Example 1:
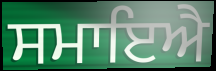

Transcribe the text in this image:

ਸਮਾਇਐ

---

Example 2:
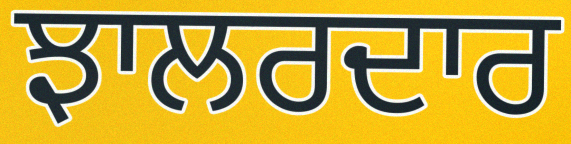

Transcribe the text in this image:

ਝਾਲਰਦਾਰ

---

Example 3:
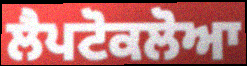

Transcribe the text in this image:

ਲੈਪਟੋਕਲੋਆ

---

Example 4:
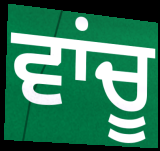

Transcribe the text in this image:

ਵਾਂਚੂ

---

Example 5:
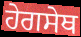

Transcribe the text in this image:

ਹੇਗਸੇਥ